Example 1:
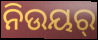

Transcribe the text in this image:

ନିଉୟର୍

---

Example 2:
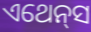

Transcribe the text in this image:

ଏଥେନ୍‌ସ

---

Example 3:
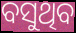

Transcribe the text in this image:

ବସୁଥିବ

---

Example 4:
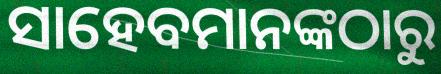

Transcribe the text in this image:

ସାହେବମାନଙ୍କଠାରୁ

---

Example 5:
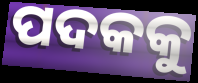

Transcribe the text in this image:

ପଦକକୁ